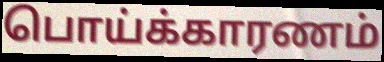
பொய்க்காரணம்